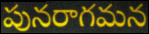
పునరాగమన